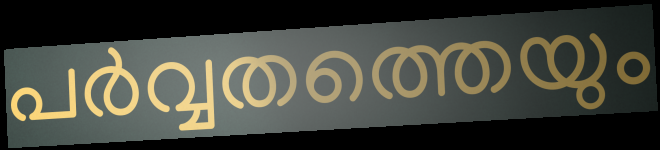
പർവ്വതത്തെയും